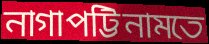
নাগাপট্টিনামতে